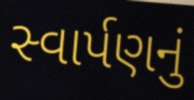
સ્વાર્પણનું